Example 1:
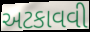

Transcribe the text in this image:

અટકાવવી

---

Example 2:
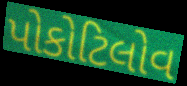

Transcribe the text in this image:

પોકોટિલોવ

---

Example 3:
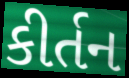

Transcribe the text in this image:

કીર્તન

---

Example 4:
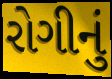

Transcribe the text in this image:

રોગીનું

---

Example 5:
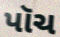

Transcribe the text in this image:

પૉચ